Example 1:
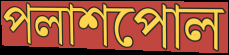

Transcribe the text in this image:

পলাশপোল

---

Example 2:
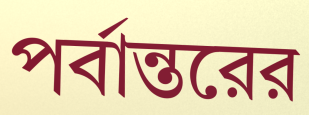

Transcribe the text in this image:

পর্বান্তরের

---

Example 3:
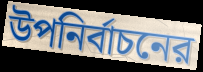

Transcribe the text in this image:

উপনির্বাচনের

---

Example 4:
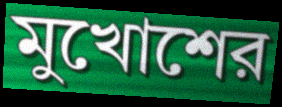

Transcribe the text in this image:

মুখোশের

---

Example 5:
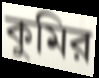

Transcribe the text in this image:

কুমির